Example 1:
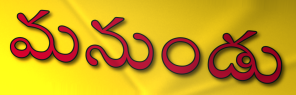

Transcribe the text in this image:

మనుండు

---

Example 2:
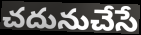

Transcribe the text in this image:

చదునుచేసే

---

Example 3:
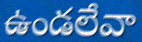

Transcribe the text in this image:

ఉండలేవా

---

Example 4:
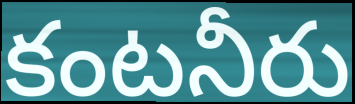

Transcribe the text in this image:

కంటనీరు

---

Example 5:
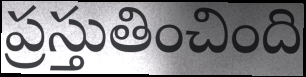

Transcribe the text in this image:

ప్రస్తుతించింది